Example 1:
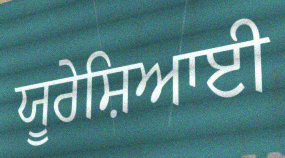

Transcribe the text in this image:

ਯੂਰੇਸ਼ਿਆਈ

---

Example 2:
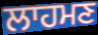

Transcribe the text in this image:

ਲਾਹਮਣ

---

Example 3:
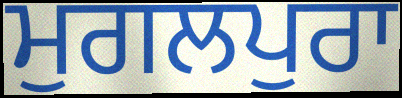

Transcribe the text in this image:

ਮੁਗਲਪੁਰਾ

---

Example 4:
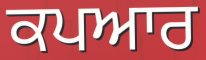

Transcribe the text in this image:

ਕਪਆਰ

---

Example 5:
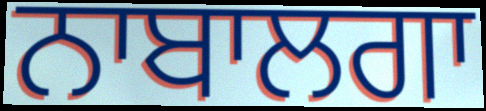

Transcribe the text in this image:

ਨਾਬਾਲਗਾ